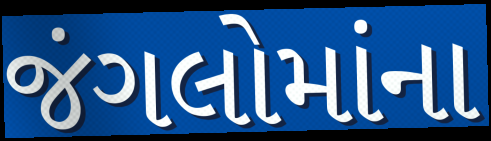
જંગલોમાંના